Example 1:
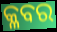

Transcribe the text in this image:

କ୍ଳବର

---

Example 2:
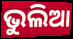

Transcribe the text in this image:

ଭୁଲିଆ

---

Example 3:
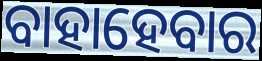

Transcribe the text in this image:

ବାହାହେବାର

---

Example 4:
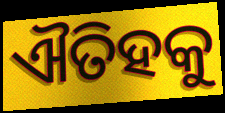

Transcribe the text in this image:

ଐତିହକୁ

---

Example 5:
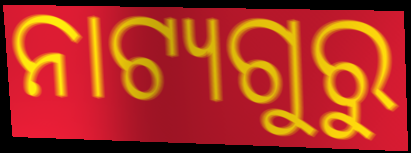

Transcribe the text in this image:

ନାଟ୍ୟଗୁରୁ